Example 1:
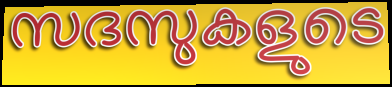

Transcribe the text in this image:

സദസുകളുടെ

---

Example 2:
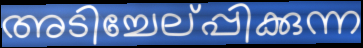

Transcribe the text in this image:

അടിച്ചേല്പ്പിക്കുന്ന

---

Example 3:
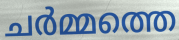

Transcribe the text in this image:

ചർമ്മത്തെ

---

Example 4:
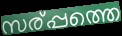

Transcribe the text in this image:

സര്പ്പത്തെ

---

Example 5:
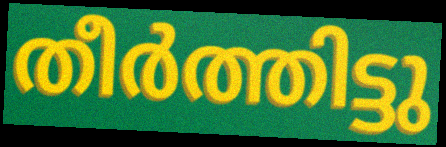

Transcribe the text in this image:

തീർത്തിട്ടു